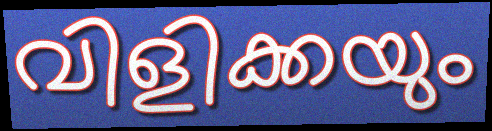
വിളിക്കയും